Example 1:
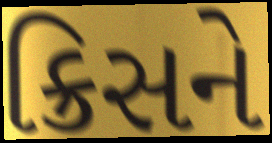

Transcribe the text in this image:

ક્રિસને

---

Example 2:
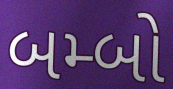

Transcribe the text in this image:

બમ્બો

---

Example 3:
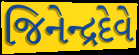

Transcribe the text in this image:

જિનેન્દ્રદેવે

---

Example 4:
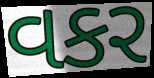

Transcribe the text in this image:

વકર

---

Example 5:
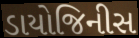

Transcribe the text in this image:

ડાયોજિનીસ